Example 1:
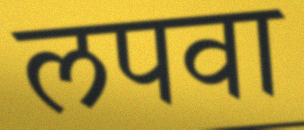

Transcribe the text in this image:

लपवा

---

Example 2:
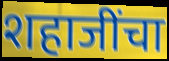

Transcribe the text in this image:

शहाजींचा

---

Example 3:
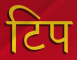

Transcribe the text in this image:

टिप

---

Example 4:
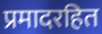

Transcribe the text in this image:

प्रमादरहित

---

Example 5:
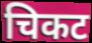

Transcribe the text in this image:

चिकट